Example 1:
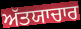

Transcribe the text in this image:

ਅੱਤਯਾਚਾਰ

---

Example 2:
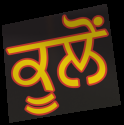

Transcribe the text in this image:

ਕੂਲੋਂ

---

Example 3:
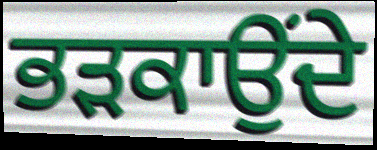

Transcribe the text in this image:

ਭੜਕਾਉਂਦੇ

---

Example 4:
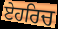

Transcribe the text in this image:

ਏਹਰਿਚ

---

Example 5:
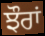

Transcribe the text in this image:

ਝੌਰਾਂ